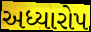
અધ્યારોપ